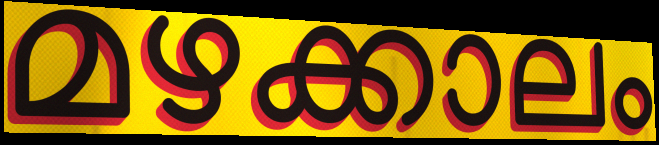
മഴക്കാലം